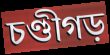
চণ্ডীগড়